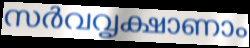
സർവവൃക്ഷാണാം